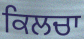
ਕਿਲਚਾ